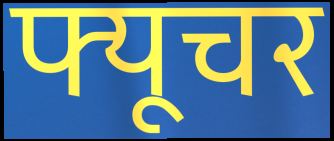
फ्यूचर